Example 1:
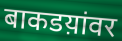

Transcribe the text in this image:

बाकडय़ांवर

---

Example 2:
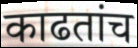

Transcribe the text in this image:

काढतांच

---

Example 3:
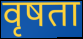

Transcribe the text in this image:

वृषता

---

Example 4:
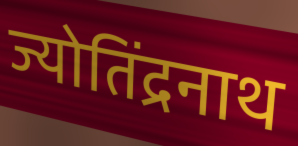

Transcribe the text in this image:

ज्योतिंद्रनाथ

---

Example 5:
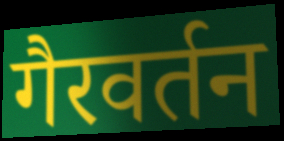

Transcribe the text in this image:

गैरवर्तन